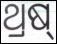
ଥ୍ରଷ୍